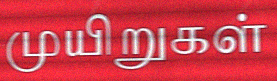
முயிறுகள்